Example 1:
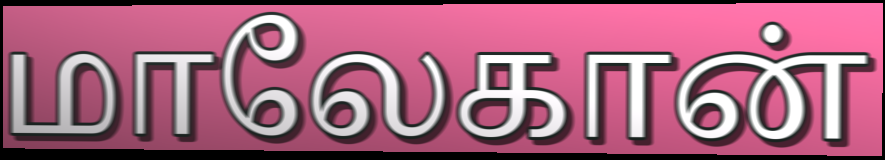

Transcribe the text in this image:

மாலேகான்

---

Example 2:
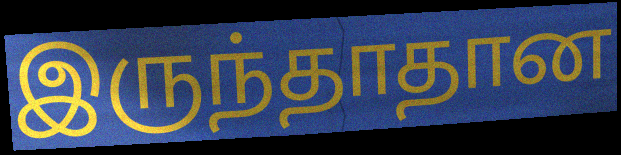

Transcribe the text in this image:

இருந்தாதான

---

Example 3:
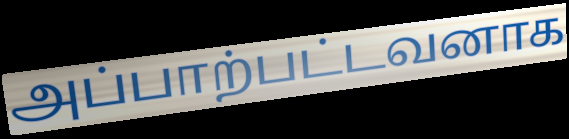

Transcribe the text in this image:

அப்பாற்பட்டவனாக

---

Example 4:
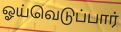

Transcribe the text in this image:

ஓய்வெடுப்பார்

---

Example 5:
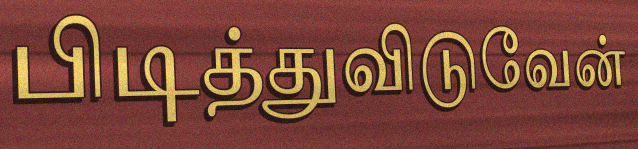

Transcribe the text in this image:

பிடித்துவிடுவேன்